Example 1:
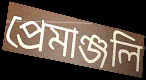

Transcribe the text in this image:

প্রেমাঞ্জলি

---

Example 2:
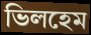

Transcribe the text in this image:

ভিলহেম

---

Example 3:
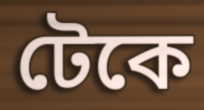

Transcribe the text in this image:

টেকে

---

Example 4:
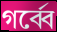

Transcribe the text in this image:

গর্ব্বে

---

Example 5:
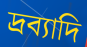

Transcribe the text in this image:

দ্রব্যাদি